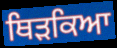
ਥਿੜਕਿਆ